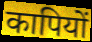
कापियों